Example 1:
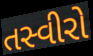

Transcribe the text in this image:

તસ્વીરો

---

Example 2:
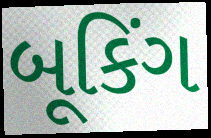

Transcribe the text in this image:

બૂકિંગ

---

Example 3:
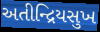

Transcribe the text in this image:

અતીન્દ્રિયસુખ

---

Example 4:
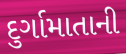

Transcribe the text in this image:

દુર્ગામાતાની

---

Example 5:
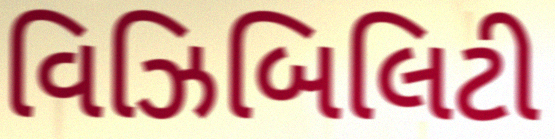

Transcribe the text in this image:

વિઝિબિલિટી